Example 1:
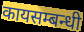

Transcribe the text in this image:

कायसम्बन्धी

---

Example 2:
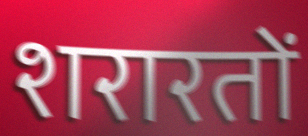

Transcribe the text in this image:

शरारतों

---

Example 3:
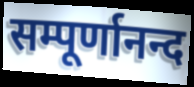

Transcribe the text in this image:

सम्पूर्णानन्द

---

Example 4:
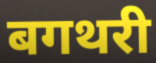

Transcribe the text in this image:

बगथरी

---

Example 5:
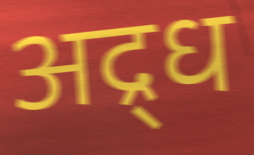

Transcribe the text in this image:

अद्र्ध